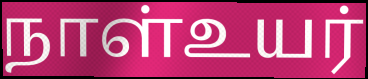
நாள்உயர்